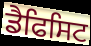
ਡੈਫਿਸਿਟ